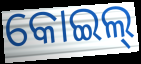
କୋଇଲ୍